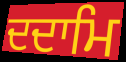
ਦਦਾਮਿ